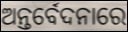
ଅନ୍ତର୍ବେଦନାରେ